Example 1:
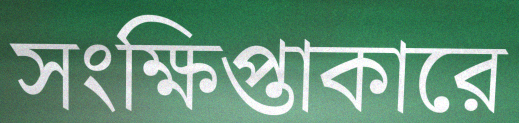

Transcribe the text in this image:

সংক্ষিপ্তাকারে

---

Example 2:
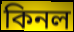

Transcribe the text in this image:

কিনল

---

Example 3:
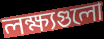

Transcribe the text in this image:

লক্ষ্যগুলো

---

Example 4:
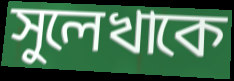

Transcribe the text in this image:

সুলেখাকে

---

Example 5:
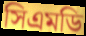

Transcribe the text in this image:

সিএমডি